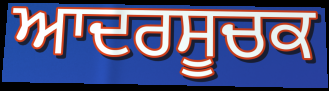
ਆਦਰਸੂਚਕ